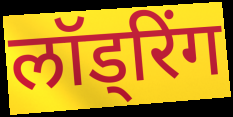
लॉड्रिंग